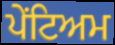
ਪੇਂਟਿਅਮ